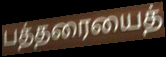
பத்தரையைத்